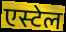
एस्टेल